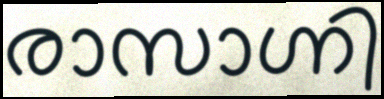
രാസാഗ്നി